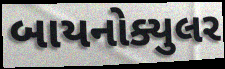
બાયનોક્યુલર